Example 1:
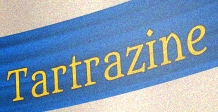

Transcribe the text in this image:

Tartrazine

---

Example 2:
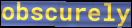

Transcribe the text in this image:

obscurely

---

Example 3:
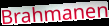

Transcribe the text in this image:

Brahmanen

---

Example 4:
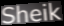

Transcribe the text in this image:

Sheik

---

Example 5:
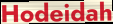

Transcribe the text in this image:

Hodeidah